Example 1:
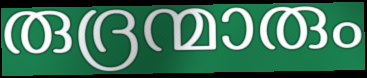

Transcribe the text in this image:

രുദ്രന്മാരും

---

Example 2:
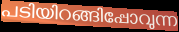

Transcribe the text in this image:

പടിയിറങ്ങിപ്പോവുന്ന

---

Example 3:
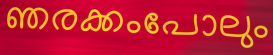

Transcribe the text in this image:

ഞരക്കംപോലും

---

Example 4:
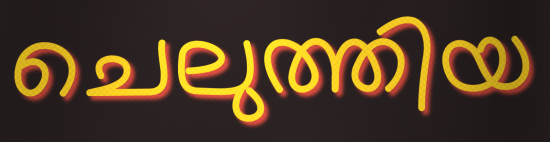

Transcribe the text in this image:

ചെലുത്തിയ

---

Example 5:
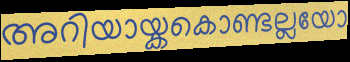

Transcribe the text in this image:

അറിയായ്കകൊണ്ടല്ലയോ